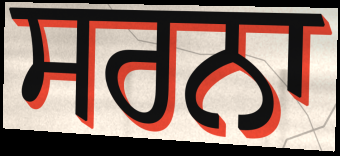
ਸਰਨਾ